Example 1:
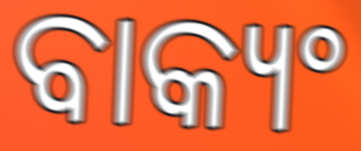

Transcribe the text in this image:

ବାକ୍ୟଂ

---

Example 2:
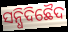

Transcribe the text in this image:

ସନ୍ଧିଦିଛୈଦ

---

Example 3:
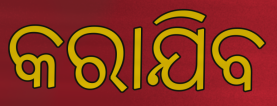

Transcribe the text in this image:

କରାଯିବ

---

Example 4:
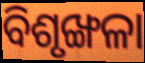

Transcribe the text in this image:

ବିଶୃଙ୍ଖଳା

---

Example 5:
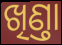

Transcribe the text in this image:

ଖିଣ୍ତା